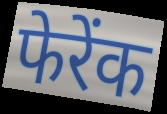
फेरेंक